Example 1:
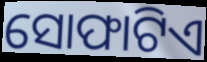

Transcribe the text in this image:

ସୋଫାଟିଏ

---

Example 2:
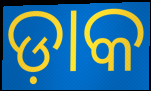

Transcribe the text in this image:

ଡ଼ାକ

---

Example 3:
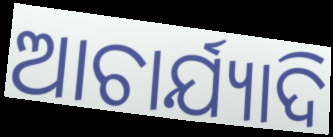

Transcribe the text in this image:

ଆଚାର୍ଯ୍ୟାଦି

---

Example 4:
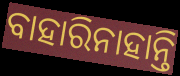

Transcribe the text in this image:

ବାହାରିନାହାନ୍ତି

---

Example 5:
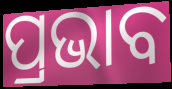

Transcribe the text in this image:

ପ୍ରଭାବ